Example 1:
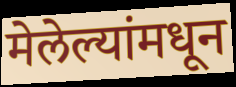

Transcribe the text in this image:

मेलेल्यांमधून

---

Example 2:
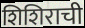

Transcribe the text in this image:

शिशिराची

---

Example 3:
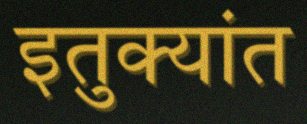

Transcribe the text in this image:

इतुक्यांत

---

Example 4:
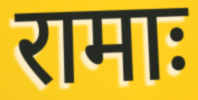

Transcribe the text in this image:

रामाः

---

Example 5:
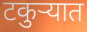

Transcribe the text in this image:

टकुर्‍यात